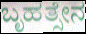
ಬೃಹತ್ಸೇನ